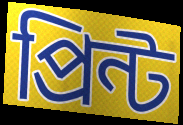
প্রিন্ট